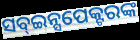
ସବ୍ଇନ୍ସପେକ୍ଟରଙ୍କ